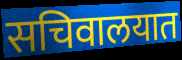
सचिवालयात